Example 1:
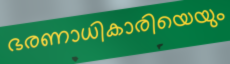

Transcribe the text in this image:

ഭരണാധികാരിയെയും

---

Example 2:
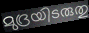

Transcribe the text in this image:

മുദ്രയിടരുതു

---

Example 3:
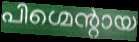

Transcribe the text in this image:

പിഗ്മെന്റായ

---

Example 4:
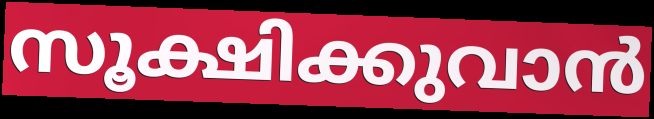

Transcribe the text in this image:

സൂക്ഷിക്കുവാൻ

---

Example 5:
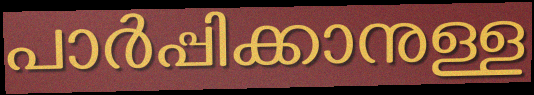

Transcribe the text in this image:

പാർപ്പിക്കാനുള്ള